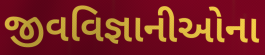
જીવવિજ્ઞાનીઓના